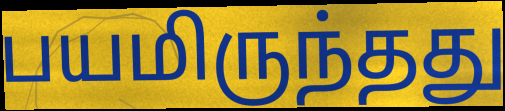
பயமிருந்தது